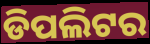
ଡିପଲିଟର